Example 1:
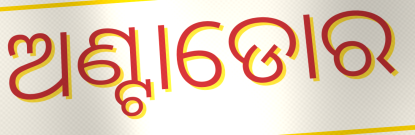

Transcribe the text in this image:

ଅଣ୍ଟାଡୋର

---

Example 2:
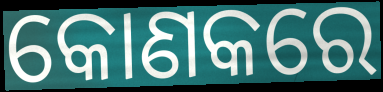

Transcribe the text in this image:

କୋଣକରେ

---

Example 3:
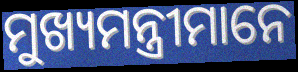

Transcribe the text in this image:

ମୁଖ୍ୟମନ୍ତ୍ରୀମାନେ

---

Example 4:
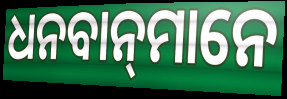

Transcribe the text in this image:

ଧନବାନ୍‍ମାନେ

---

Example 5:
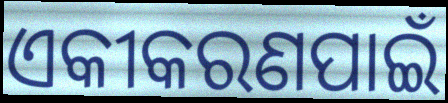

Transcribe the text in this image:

ଏକୀକରଣପାଇଁ